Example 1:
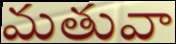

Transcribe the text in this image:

మతువా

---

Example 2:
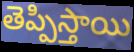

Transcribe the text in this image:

తెప్పిస్తాయి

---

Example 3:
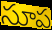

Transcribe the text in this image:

సూప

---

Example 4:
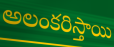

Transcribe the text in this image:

అలంకరిస్తాయి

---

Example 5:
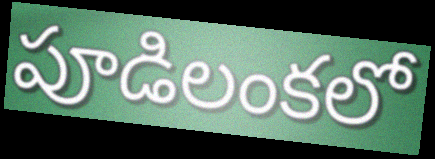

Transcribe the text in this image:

పూడిలంకలో